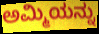
ಅಮ್ಮಿಯನ್ನು